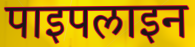
पाइपलाइन